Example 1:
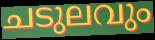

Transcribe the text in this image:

ചടുലവും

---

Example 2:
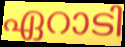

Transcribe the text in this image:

ഏറാടി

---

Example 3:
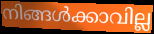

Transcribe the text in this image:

നിങ്ങൾക്കാവില്ല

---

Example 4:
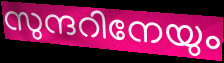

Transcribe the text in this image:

സുന്ദറിനേയും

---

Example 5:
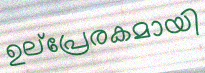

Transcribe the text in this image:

ഉല്പ്രേരകമായി